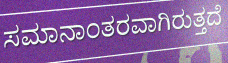
ಸಮಾನಾಂತರವಾಗಿರುತ್ತದೆ